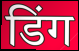
डिंग